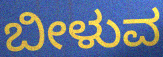
ಬೀಳುವ